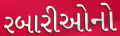
રબારીઓનો